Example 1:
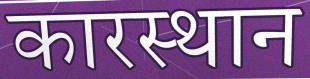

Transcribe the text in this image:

कारस्थान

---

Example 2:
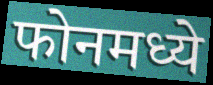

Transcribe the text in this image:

फोनमध्ये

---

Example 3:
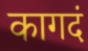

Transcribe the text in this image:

कागदं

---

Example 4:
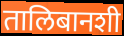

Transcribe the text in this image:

तालिबानशी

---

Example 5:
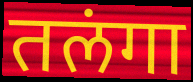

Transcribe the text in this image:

तलंगा